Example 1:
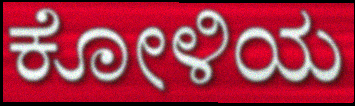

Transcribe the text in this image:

ಕೋಳಿಯ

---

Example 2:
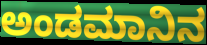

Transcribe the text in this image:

ಅಂಡಮಾನಿನ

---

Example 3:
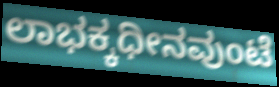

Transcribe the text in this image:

ಲಾಭಕ್ಕಧೀನವುಂಟೆ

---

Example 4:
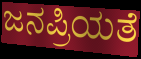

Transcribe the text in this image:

ಜನಪ್ರಿಯತೆ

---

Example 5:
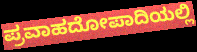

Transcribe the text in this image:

ಪ್ರವಾಹದೋಪಾದಿಯಲ್ಲಿ